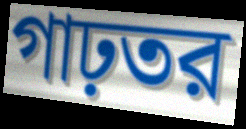
গাঢ়তর